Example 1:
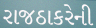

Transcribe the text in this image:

રાજઠાકરેની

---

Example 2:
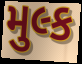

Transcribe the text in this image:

મુલ્ક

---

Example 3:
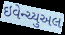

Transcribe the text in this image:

ઇવેન્ચ્યુઅલ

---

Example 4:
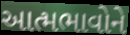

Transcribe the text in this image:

આત્મભાવોને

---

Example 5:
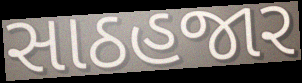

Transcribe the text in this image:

સાઠહજાર